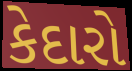
કેદારો